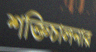
শক্তিচালনার